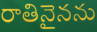
రాతినైనను